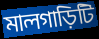
মালগাড়িটি